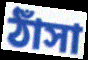
ঠাঁসা